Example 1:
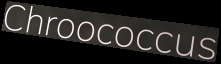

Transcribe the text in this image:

Chroococcus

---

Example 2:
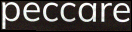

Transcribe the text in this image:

peccare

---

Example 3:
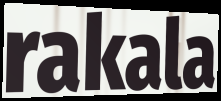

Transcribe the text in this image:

rakala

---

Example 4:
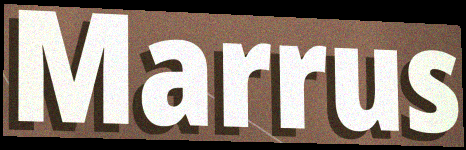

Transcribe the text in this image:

Marrus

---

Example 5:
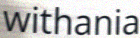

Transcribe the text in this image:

withania